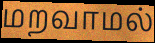
மறவாமல்